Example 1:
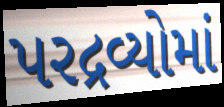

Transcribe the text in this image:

પરદ્રવ્યોમાં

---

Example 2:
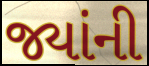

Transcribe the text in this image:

જ્યાંની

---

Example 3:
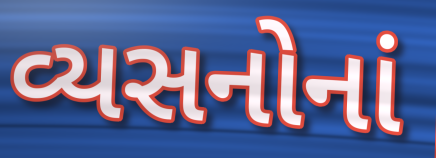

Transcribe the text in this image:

વ્યસનોનાં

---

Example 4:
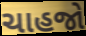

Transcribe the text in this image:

ચાહજો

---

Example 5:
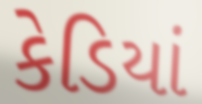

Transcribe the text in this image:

કેડિયાં